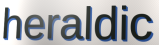
heraldic